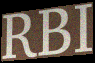
RBI